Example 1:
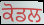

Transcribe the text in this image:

ਕੋਡਲ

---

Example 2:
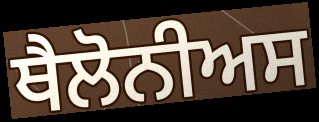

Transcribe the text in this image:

ਥੈਲੋਨੀਅਸ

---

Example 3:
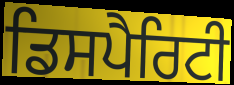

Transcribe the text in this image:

ਡਿਸਪੈਰਿਟੀ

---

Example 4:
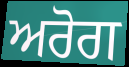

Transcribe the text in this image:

ਅਰੋਗ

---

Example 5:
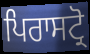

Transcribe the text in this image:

ਪਿਰਾਸਟ੍ਰੋ